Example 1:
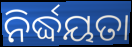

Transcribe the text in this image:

ନିର୍ଦ୍ଧୟତା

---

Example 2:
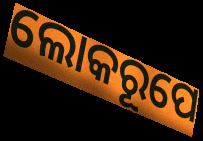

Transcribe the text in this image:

ଲୋକରୂପେ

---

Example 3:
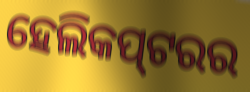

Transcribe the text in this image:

ହେଲିକପ୍‌ଟରର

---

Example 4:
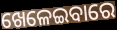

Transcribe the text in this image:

ଖେଳେଇବାରେ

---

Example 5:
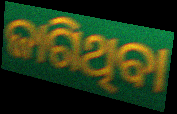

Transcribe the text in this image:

ଜାଗିଥିବା